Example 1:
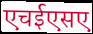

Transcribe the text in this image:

एचईएसए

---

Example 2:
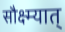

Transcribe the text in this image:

सौक्ष्म्यात्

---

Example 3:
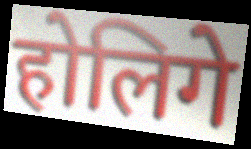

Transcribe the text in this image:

होलिगे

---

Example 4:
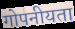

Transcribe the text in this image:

गोपनीयता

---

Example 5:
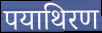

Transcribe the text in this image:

पयाथिरण